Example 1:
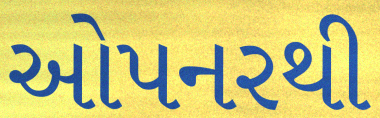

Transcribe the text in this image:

ઓપનરથી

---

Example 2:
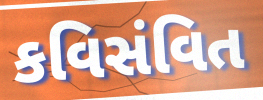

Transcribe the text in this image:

કવિસંવિત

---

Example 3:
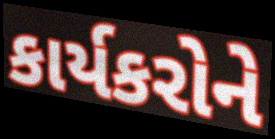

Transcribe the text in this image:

કાર્યકરોને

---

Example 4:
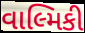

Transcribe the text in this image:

વાલ્મિકી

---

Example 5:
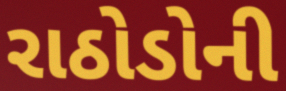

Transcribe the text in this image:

રાઠોડોની